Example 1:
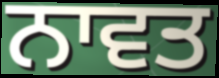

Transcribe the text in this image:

ਨਾਵਤ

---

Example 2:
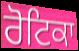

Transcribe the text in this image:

ਰੋਟਿਕਾ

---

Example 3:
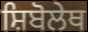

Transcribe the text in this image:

ਸ਼ਿਬੋਲੇਥ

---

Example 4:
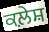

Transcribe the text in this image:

ਕਲ਼ੇਸ਼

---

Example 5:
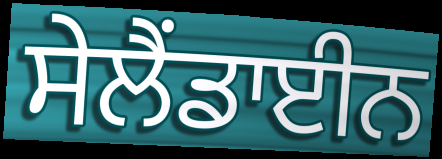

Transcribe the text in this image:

ਸੇਲੈਂਡਾਈਨ